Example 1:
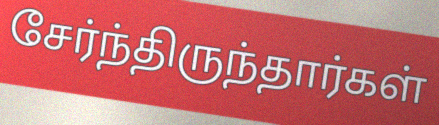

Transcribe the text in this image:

சேர்ந்திருந்தார்கள்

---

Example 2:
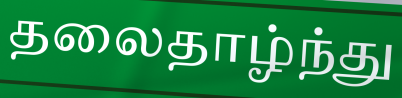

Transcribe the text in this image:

தலைதாழ்ந்து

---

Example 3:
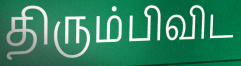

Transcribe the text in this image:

திரும்பிவிட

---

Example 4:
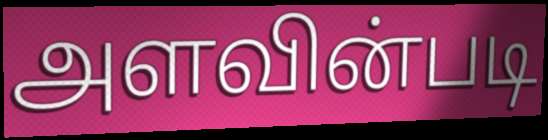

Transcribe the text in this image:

அளவின்படி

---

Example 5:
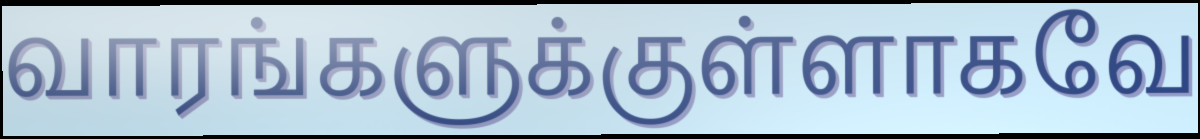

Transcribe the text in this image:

வாரங்களுக்குள்ளாகவே